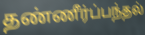
தண்ணீர்ப்பந்தல்